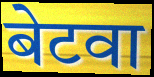
बेटवा